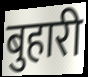
बुहारी